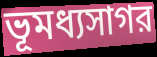
ভূমধ্যসাগর